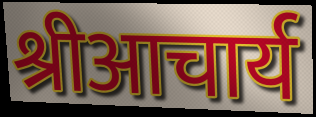
श्रीआचार्य